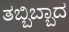
ತಬ್ಬಿಬ್ಬಾದ